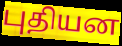
புதியன